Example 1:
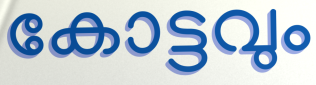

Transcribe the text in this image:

കോട്ടവും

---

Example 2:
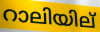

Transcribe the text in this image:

റാലിയില്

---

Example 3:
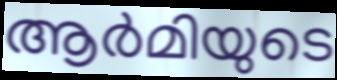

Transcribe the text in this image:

ആർമിയുടെ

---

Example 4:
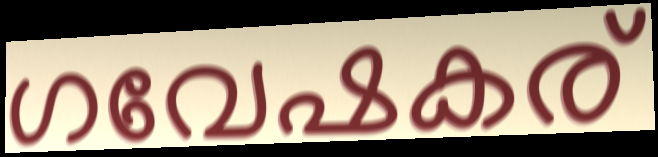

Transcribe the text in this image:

ഗവേഷകര്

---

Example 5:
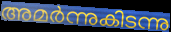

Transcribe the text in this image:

അമർന്നുകിടന്നു